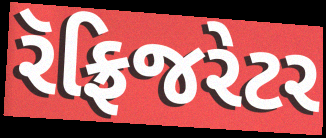
રૅફ્રિજરેટર